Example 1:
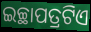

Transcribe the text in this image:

ଇଚ୍ଛାପତ୍ରଟିଏ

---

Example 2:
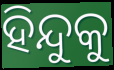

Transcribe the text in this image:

ହିନ୍ଦୁକୁ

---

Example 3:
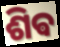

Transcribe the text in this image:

ଶିଵ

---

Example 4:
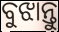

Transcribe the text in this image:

ବୁଝାନ୍ତୁ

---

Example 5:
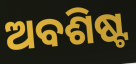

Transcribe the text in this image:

ଅବଶିଷ୍ଟ